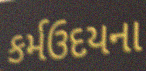
કર્મઉદયના